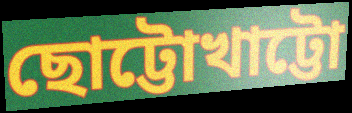
ছোট্টোখাট্টো